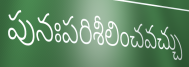
పునఃపరిశీలించవచ్చు